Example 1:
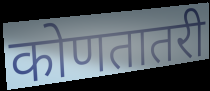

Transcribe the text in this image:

कोणतातरी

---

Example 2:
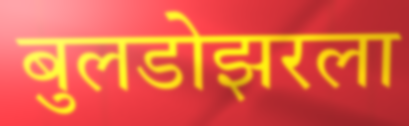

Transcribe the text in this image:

बुलडोझरला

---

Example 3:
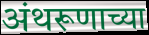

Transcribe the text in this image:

अंथरूणाच्या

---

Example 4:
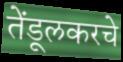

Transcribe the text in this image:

तेंडूलकरचे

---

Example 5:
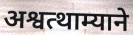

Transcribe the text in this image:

अश्वत्थाम्याने